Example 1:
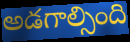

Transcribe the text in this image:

అడగాల్సింది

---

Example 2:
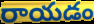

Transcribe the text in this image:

రాయడం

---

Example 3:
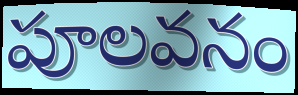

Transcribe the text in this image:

పూలవనం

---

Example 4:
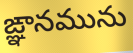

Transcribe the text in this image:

ఙ్ఞానమును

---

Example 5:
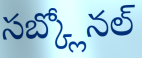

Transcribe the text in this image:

సబ్క్లోనల్